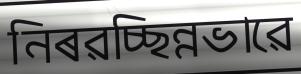
নিৰৱচ্ছিন্নভাৱে